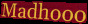
Madhooo